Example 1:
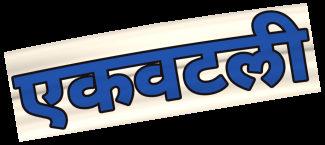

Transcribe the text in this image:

एकवटली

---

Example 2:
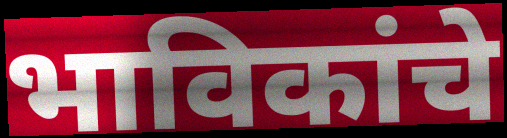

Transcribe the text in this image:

भाविकांचे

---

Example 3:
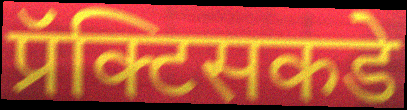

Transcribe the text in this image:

प्रॅक्टिसकडे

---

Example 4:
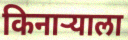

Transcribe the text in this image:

किनाऱ्याला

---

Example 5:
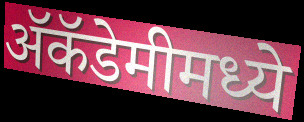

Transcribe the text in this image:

ॲकॅडेमीमध्ये